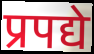
प्रपद्ये